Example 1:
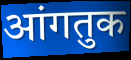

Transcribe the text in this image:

आंगतुक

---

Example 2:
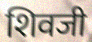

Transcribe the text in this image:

शिवजी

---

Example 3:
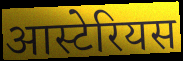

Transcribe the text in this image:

आस्टेरियस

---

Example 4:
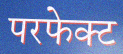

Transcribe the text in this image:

परफेक्ट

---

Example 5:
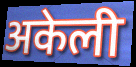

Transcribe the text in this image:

अकेली